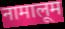
नामालूम